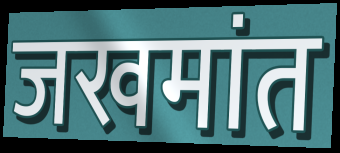
जखमांत